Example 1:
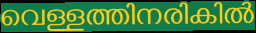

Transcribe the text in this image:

വെള്ളത്തിനരികിൽ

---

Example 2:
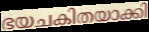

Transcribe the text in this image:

ഭയചകിതയാക്കി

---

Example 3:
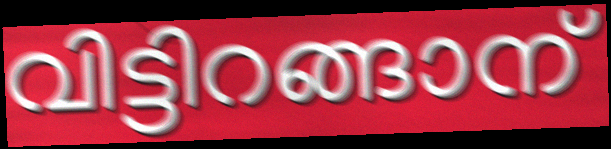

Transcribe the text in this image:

വിട്ടിറങ്ങാന്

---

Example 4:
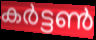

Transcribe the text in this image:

കർട്ടൺ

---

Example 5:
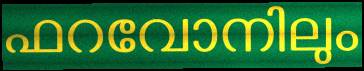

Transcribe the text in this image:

ഫറവോനിലും